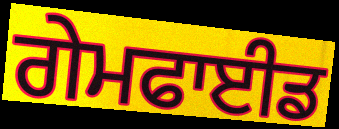
ਗੇਮਫਾਈਡ